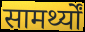
सामर्थ्यों